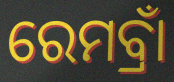
ରେମବ୍ରାଁ